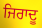
ਜਿਰਾਦੂ